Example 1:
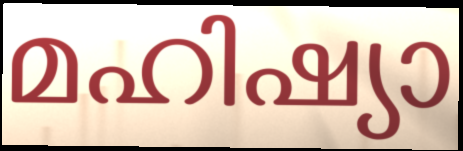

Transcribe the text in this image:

മഹിഷ്യാ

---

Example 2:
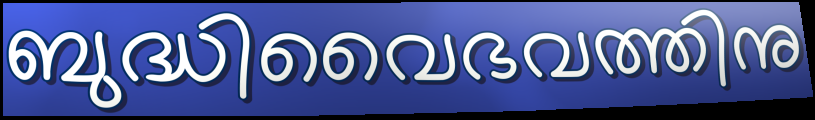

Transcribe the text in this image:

ബുദ്ധിവൈഭവത്തിനു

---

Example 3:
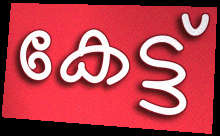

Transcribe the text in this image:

കേട്ട്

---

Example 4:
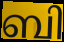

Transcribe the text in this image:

ബി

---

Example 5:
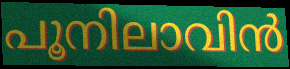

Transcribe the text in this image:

പൂനിലാവിൻ